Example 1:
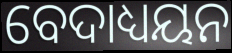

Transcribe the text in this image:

ବେଦାଧ୍ୟୟନ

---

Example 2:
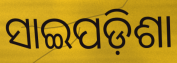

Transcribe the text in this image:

ସାଇପଡ଼ିଶା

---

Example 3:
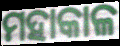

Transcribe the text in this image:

ମହାକାଳ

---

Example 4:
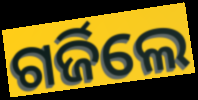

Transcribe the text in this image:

ଗର୍ଜିଲେ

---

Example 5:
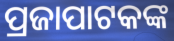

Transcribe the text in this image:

ପ୍ରଜାପାଟକଙ୍କ